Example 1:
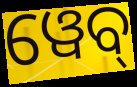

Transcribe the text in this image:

ୱେବ୍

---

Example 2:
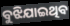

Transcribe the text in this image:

ବୁଝିଯାଇଥିବ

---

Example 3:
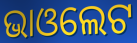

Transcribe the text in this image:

ଭାଓଲେଟ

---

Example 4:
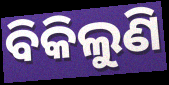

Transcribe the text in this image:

ବିକିଲୁଣି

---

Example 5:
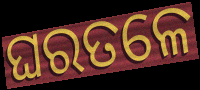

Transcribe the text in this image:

ଘରତଳେ